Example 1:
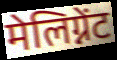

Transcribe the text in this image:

मेलिग्नेंट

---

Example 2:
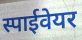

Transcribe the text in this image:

स्पाईवेयर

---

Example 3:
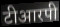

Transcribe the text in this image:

टीआरपी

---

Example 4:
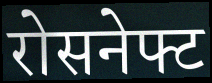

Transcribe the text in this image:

रोसनेफ्ट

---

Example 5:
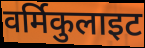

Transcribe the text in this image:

वर्मिकुलाइट